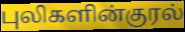
புலிகளின்குரல்